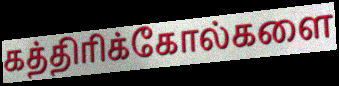
கத்திரிக்கோல்களை